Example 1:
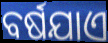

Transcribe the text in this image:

ବର୍ଷଯାଏ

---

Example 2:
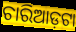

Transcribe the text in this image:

ଚାରିଆଡ଼ଟା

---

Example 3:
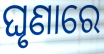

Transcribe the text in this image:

ଘୃଣାରେ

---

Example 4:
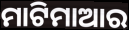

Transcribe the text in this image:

ମାଟିମାଆର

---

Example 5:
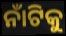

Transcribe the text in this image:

ନାଁଟିକୁ